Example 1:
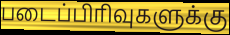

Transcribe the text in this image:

படைப்பிரிவுகளுக்கு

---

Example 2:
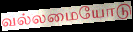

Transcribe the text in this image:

வல்லமையோடு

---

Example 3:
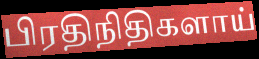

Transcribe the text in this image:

பிரதிநிதிகளாய்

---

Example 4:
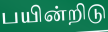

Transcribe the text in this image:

பயின்றிடு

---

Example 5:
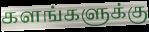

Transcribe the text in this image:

களங்களுக்கு